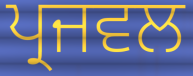
ਪ੍ਰਜਵਲ